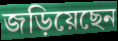
জড়িয়েছেন